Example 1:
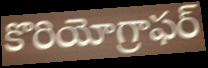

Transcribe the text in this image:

కొరియోగ్రాఫర్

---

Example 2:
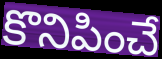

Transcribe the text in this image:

కొనిపించే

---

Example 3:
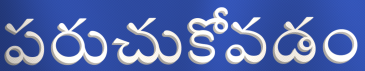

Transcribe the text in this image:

పరుచుకోవడం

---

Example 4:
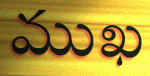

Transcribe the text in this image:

ముఖ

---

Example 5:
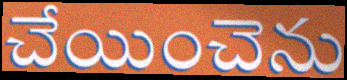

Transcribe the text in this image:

చేయించెను